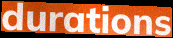
durations